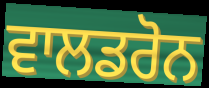
ਵਾਲਡਰੋਨ